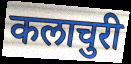
कलाचुरी